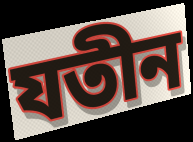
যতীন